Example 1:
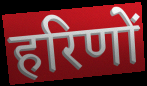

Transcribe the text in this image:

हरिणों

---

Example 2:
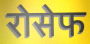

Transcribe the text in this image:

रोसेफ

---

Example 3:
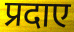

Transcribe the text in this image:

प्रदाए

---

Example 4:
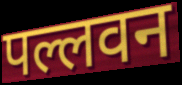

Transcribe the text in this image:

पल्लवन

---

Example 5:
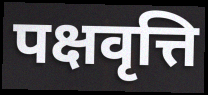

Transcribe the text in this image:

पक्षवृत्ति